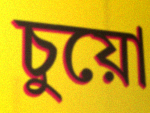
চুয়ো